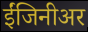
ईंजिनीअर